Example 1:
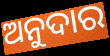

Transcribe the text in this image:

ଅନୁଦାର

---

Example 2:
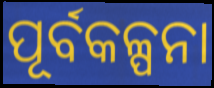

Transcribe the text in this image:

ପୂର୍ବକଳ୍ପନା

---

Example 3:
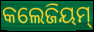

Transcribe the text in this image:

କଲେଜିୟମ୍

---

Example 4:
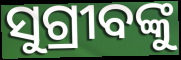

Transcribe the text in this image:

ସୁଗ୍ରୀବଙ୍କୁ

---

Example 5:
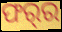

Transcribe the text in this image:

ଫର୍‌ର